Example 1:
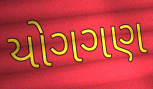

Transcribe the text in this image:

યોગગણ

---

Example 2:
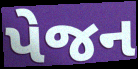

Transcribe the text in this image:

પેજન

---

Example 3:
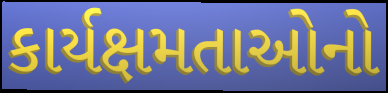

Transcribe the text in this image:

કાર્યક્ષમતાઓનો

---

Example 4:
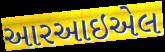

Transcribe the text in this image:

આરઆઇએલ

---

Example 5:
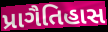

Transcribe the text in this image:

પ્રાગૈતિહાસ